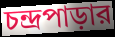
চন্দ্রপাড়ার